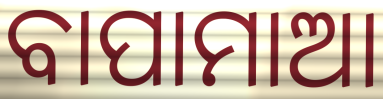
ବାପାମାଆ